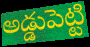
అడ్డుపెట్టి